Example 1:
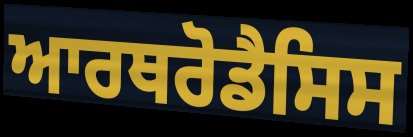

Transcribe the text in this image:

ਆਰਥਰੋਡੈਸਿਸ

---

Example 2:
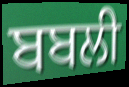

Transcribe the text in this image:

ਬਬਲੀ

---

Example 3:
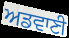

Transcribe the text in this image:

ਅਡਵਾਣੀ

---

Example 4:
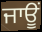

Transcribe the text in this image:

ਜਾਊਂ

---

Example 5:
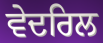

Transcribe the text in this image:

ਵੇਦਰਿਲ